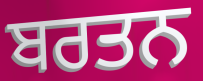
ਬਰਤਨ